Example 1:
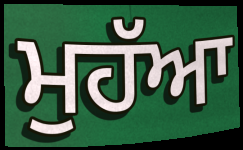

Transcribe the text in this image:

ਮੁਹੱਆ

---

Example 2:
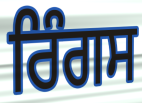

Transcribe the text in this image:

ਰਿੰਗਸ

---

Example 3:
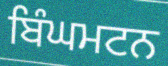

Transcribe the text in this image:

ਬਿੰਘਮਟਨ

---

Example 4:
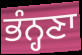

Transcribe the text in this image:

ਭੰਨ੍ਹਣਾ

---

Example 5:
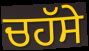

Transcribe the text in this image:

ਚਹੱਸੇ